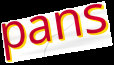
pans